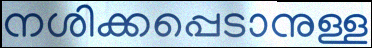
നശിക്കപ്പെടാനുള്ള